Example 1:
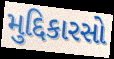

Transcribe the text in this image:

મુદ્દિકારસો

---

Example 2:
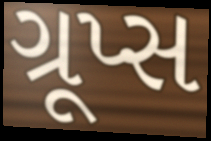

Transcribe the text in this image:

ગ્રૂપ્સ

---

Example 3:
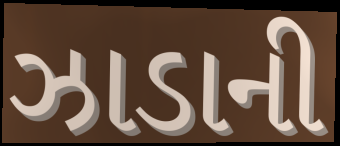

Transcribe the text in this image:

ઝાડાની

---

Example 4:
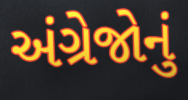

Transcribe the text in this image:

અંગ્રેજોનું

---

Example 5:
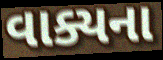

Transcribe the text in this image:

વાક્યના